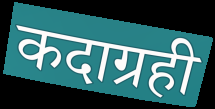
कदाग्रही